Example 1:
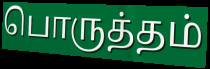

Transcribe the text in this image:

பொருத்தம்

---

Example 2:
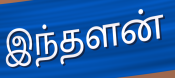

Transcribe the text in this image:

இந்தளன்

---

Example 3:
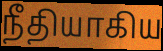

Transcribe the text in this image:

நீதியாகிய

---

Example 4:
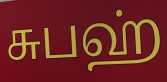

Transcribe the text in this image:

சுபஹ்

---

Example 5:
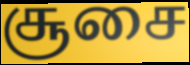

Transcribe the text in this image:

சூசை